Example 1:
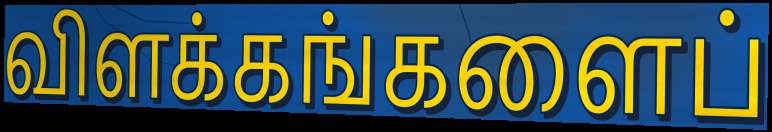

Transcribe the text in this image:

விளக்கங்களைப்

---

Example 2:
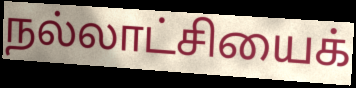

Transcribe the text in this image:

நல்லாட்சியைக்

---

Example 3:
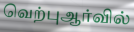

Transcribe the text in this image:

வெற்புஆர்வில்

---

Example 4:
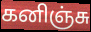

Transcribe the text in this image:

கனிஞ்சு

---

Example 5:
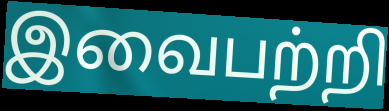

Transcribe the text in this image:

இவைபற்றி